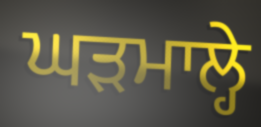
ਘੜਮਾਲ੍ਹੇ